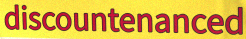
discountenanced